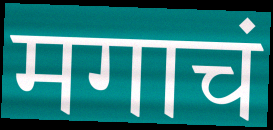
मगाचं